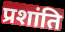
प्रशांति